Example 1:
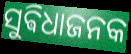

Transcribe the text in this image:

ସୁଵିଧାଜନକ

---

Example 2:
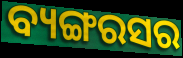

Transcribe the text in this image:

ବ୍ୟଙ୍ଗରସର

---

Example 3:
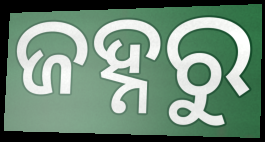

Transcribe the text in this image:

ଜହ୍ନରୁ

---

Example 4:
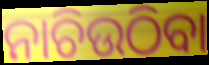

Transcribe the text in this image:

ନାଚିଉଠିବା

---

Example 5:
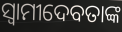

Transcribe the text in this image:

ସ୍ୱାମୀଦେବତାଙ୍କ